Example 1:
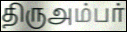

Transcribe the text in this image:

திருஅம்பர்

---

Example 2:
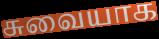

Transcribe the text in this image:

சுவையாக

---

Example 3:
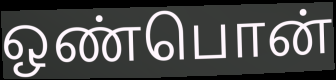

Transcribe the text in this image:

ஒண்பொன்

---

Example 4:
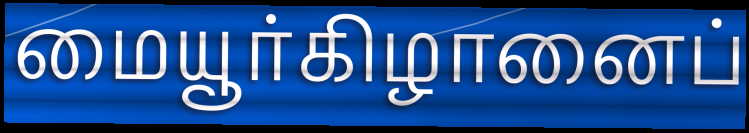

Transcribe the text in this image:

மையூர்கிழானைப்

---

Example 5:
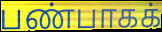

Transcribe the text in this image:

பண்பாகக்